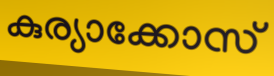
കുര്യാക്കോസ്